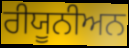
ਰੀਯੂਨੀਅਨ